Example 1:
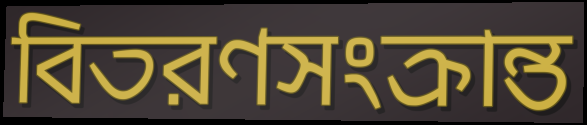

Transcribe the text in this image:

বিতরণসংক্রান্ত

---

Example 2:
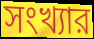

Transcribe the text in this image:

সংখ্যার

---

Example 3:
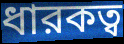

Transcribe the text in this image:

ধারকত্ব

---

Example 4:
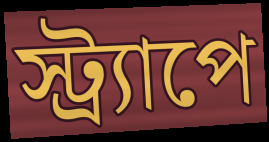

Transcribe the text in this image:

স্ট্র্যাপে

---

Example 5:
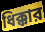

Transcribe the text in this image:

ধিক্কার